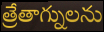
త్రేతాగ్నులను